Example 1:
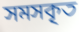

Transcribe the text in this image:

সমসকৃত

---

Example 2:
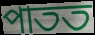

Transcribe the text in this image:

পাতত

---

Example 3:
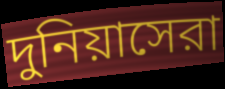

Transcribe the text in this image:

দুনিয়াসেরা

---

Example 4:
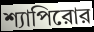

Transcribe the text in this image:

শ্যাপিরোর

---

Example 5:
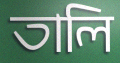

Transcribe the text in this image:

তালি